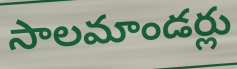
సాలమాండర్లు